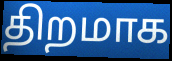
திறமாக